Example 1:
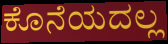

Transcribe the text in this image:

ಕೊನೆಯದಲ್ಲ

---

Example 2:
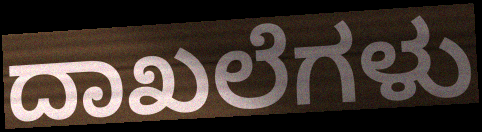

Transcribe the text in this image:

ದಾಖಲೆಗಳು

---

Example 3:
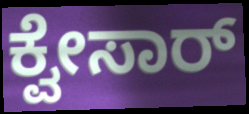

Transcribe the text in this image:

ಕ್ವೇಸಾರ್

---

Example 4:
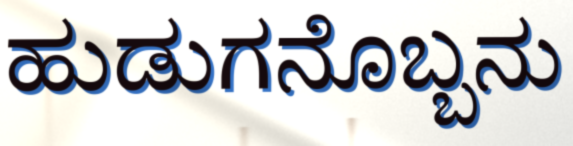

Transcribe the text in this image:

ಹುಡುಗನೊಬ್ಬನು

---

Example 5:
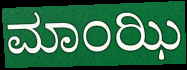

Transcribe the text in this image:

ಮಾಂಝಿ